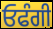
ਓਫੰਗੀ